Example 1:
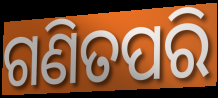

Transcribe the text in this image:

ଗଣିତପରି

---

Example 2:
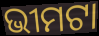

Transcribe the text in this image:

ଭୀମଟା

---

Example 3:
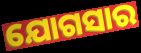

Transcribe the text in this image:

ଯୋଗସାର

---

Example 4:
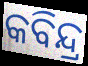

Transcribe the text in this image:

କବିନ୍ଦ୍ର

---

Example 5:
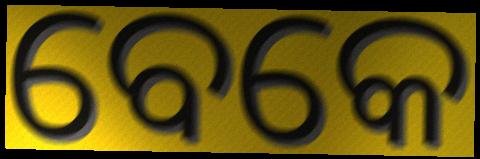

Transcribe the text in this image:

ବେକେ